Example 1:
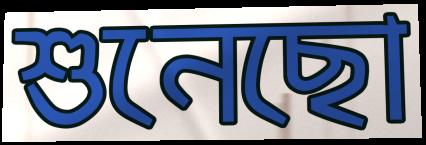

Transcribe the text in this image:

শুনেছো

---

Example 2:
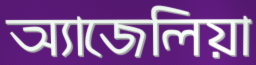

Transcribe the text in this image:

অ্যাজেলিয়া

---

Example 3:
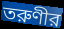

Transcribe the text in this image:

তরুণীর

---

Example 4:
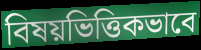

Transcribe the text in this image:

বিষয়ভিত্তিকভাবে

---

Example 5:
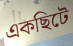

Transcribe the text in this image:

একছিটে